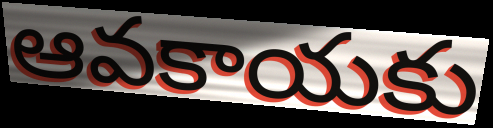
ఆవకాయకు